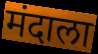
मंदाला